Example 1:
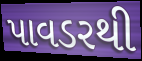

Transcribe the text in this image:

પાવડરથી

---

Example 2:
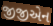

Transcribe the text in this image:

જીજીએન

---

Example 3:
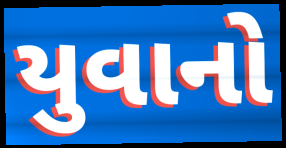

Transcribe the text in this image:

યુવાનો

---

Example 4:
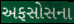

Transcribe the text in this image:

અફસોસના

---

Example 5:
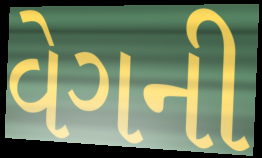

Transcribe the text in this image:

વેગની